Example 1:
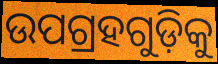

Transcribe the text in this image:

ଉପଗ୍ରହଗୁଡ଼ିକୁ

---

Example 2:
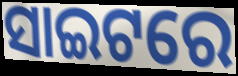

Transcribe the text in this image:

ସାଇଟରେ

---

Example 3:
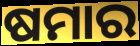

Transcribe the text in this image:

ଷମାର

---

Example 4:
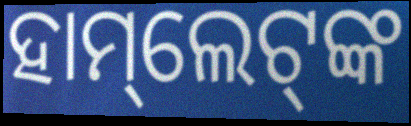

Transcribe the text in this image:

ହାମ୍‌ଲେଟ୍‌ଙ୍କ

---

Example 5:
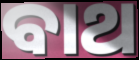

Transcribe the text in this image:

ବାଥ